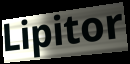
Lipitor